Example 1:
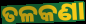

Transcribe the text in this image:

ତଳକଣା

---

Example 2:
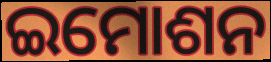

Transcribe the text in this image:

ଇମୋଶନ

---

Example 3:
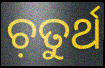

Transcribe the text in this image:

ଚ଼ତୁର୍ଥ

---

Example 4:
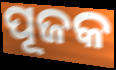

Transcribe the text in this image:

ପୂଜକ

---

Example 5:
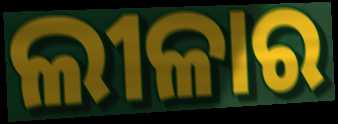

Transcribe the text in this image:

ଲୀଳାର